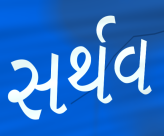
સર્થવ